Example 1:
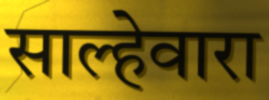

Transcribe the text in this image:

साल्हेवारा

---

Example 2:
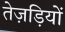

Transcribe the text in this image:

तेज़ड़ियों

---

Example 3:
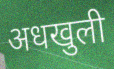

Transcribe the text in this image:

अधखुली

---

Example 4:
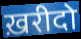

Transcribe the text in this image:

ख़रीदो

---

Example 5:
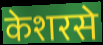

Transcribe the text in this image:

केशरसे